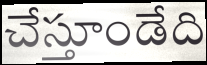
చేస్తూండేది